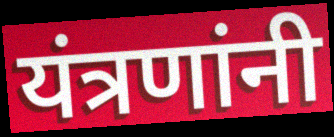
यंत्रणांनी